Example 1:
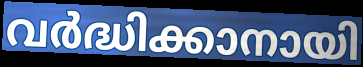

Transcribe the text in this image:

വർദ്ധിക്കാനായി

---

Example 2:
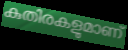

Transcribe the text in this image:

കുതിരകളുമാണ്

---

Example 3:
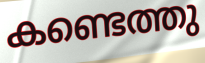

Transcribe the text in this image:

കണ്ടെത്തു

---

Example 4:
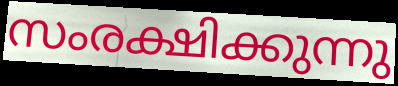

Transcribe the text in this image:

സംരക്ഷിക്കുന്നു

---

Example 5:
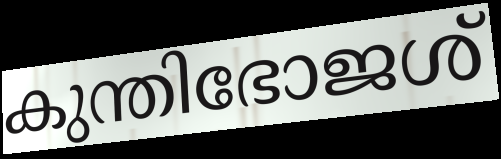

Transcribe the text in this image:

കുന്തിഭോജശ്